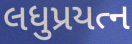
લધુપ્રયત્ન